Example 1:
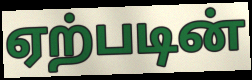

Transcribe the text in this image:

ஏற்படின்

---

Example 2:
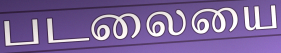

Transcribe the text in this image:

படலையை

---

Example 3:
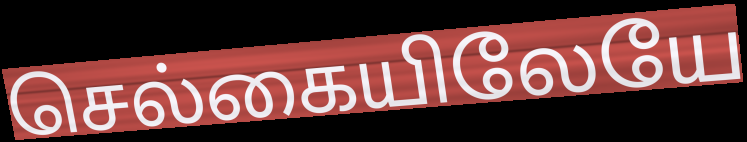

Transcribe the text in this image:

செல்கையிலேயே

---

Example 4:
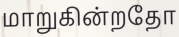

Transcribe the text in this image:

மாறுகின்றதோ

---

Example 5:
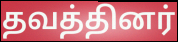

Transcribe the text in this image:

தவத்தினர்